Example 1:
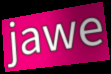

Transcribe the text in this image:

jawe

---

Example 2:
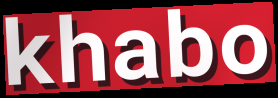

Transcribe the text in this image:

khabo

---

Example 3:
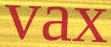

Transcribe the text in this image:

vax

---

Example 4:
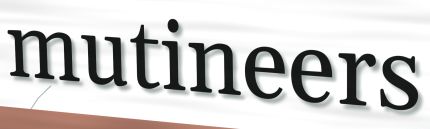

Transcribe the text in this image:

mutineers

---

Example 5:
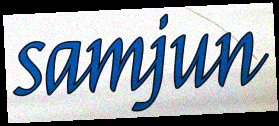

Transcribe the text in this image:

samjun